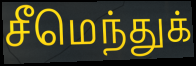
சீமெந்துக்